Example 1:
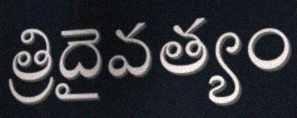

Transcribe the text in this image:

త్రిదైవత్యం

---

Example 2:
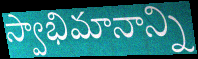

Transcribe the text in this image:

స్వాభిమానాన్ని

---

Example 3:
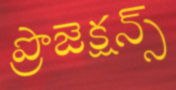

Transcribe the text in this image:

ప్రొజెక్షన్స్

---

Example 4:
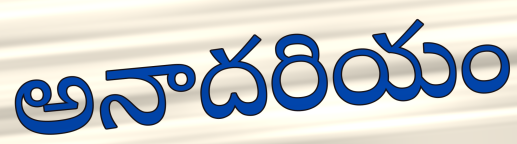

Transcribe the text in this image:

అనాదరియం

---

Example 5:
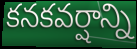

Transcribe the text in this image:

కనకవర్షాన్ని